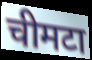
चीमटा